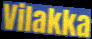
Vilakka